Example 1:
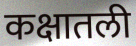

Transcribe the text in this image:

कक्षातली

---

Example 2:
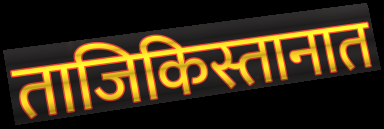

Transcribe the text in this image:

ताजिकिस्तानात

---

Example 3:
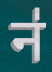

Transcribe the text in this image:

न॑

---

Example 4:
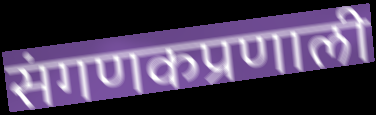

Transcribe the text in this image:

संगणकप्रणाली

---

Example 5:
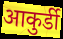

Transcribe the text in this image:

आकुर्डी